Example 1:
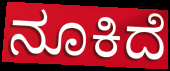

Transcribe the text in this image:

ನೂಕಿದೆ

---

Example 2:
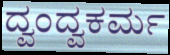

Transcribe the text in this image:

ದ್ವಂದ್ವಕರ್ಮ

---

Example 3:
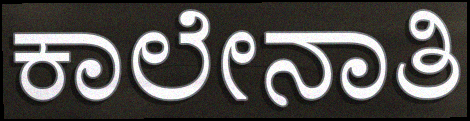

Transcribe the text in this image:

ಕಾಲೇನಾತಿ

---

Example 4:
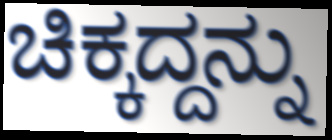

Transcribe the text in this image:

ಚಿಕ್ಕದ್ದನ್ನು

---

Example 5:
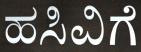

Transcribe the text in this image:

ಹಸಿವಿಗೆ